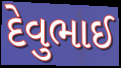
દેવુભાઈ